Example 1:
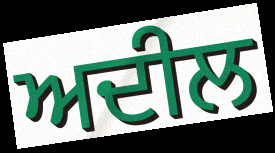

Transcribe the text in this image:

ਅਦੀਲ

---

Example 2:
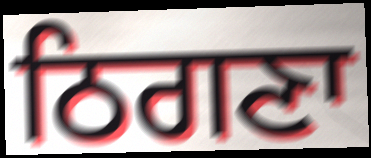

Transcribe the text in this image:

ਠਿਗਣਾ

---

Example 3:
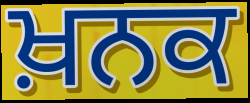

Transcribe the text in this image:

ਖ਼ਨਕ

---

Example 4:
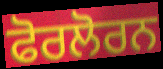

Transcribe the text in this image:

ਫੋਰਲੋਰਨ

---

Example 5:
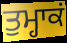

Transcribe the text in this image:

ਤੁਮ੍ਹਾਕਂ